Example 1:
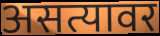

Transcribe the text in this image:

असत्यावर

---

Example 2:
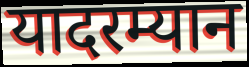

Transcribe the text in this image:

यादरम्यान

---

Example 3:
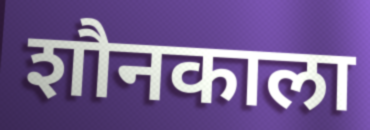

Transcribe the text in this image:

शौनकाला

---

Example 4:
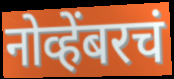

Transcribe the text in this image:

नोव्हेंबरचं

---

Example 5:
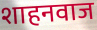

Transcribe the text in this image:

शाहनवाज